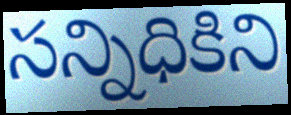
సన్నిధికిని